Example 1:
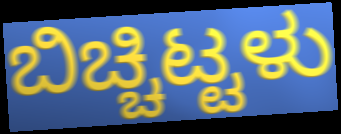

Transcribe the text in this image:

ಬಿಚ್ಚಿಟ್ಟಳು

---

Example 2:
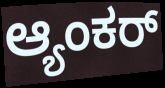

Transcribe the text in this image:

ಆ್ಯಂಕರ್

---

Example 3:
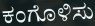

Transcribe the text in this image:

ಕಂಗೊಳಿಸು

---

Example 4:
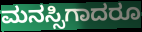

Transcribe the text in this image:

ಮನಸ್ಸಿಗಾದರೂ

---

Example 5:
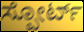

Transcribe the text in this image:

ಸ್ಪೋರ್ಟ್